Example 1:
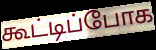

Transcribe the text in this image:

கூட்டிப்போக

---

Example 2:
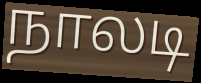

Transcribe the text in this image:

நாலடி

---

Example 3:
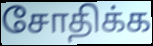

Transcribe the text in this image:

சோதிக்க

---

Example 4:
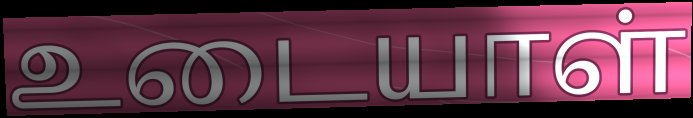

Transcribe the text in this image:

உடையாள்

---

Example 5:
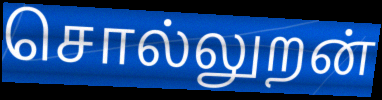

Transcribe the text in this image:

சொல்லுறன்